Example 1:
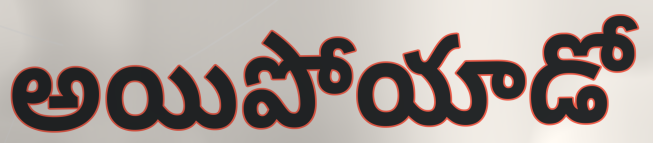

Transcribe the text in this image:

అయిపోయాడో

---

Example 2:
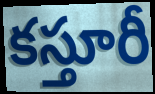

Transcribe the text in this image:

కస్తూరీ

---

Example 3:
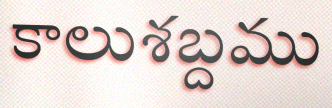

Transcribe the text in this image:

కాలుశబ్దము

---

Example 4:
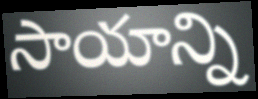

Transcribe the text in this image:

సాయాన్ని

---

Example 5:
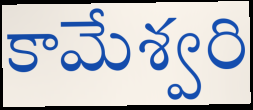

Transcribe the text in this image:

కామేశ్వరి